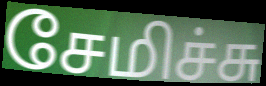
சேமிச்சு